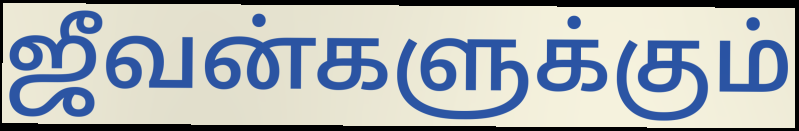
ஜீவன்களுக்கும்